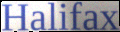
Halifax